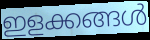
ഇളക്കങ്ങൾ